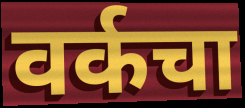
वर्कचा